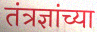
तंत्रज्ञांच्या